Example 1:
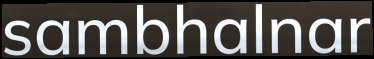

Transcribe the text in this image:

sambhalnar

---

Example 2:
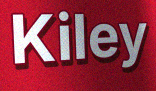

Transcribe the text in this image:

Kiley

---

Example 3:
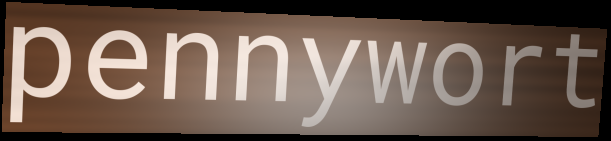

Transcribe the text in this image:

pennywort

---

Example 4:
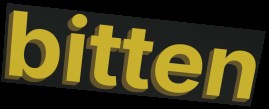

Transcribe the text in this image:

bitten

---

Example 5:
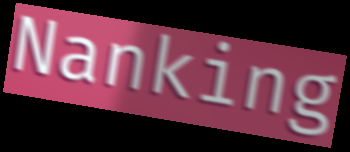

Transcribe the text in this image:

Nanking